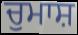
ਚੁਮਾਸ਼